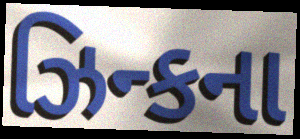
ઝિન્કના